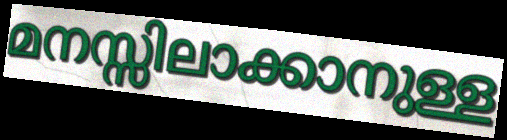
മനസ്സിലാക്കാനുള്ള